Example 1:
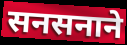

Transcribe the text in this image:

सनसनाने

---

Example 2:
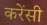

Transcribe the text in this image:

करेंसी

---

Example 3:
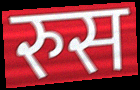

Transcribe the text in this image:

रुस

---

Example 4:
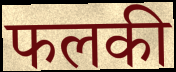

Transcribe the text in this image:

फलकी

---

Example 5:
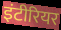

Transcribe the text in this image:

इंटीरियर